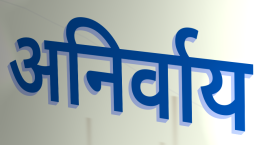
अनिर्वाय